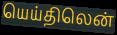
யெய்திலென்